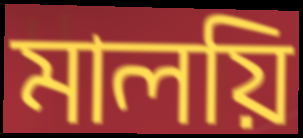
মালয়ি